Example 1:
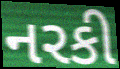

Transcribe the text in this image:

નરકી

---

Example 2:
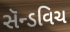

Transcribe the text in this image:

સૅન્ડવિચ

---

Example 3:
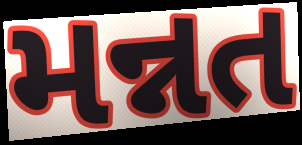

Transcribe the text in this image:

મન્નત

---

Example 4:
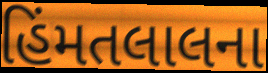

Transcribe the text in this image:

હિંમતલાલના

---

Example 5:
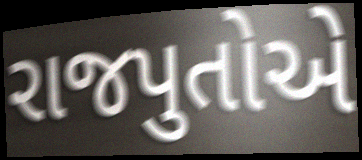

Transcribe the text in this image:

રાજપુતોએ